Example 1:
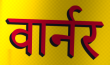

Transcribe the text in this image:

वार्नर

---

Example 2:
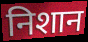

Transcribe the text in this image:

निशान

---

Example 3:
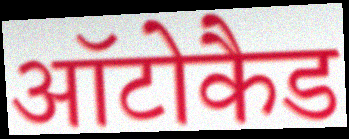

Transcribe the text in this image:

ऑटोकैड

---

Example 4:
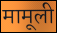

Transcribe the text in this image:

मामूली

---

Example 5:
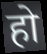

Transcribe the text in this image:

हो